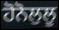
ਹੋਨੋਲੁਲੂ